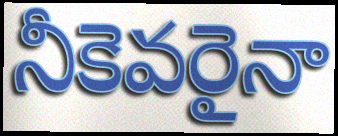
నీకెవరైనా